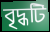
বৃদ্ধটি